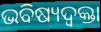
ଭବିଷ୍ୟଦ୍ବକ୍ତା